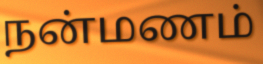
நன்மணம்